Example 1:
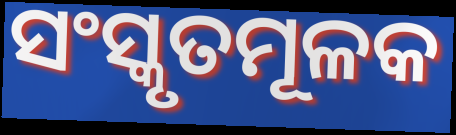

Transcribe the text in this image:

ସଂସ୍କୃତମୂଳକ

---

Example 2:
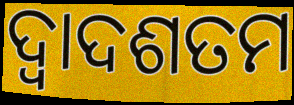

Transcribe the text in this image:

ଦ୍ୱାଦଶତମ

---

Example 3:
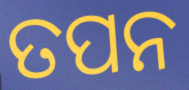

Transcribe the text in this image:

ତପନ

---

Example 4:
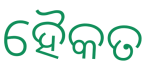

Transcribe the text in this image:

ହୈକତ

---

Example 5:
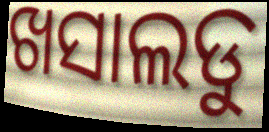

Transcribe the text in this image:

ଖସାଲଡୁ